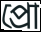
প্রো